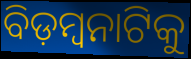
ବିଡ଼ମ୍ବନାଟିକୁ